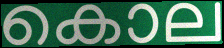
കൊല